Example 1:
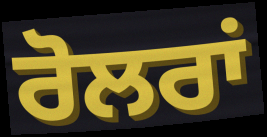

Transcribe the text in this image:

ਰੋਲਰਾਂ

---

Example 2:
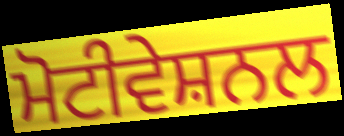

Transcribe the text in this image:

ਮੋਟੀਵੇਸ਼ਨਲ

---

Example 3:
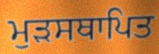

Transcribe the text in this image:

ਮੁੜਸਥਾਪਿਤ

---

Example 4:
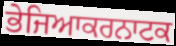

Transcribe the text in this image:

ਭੇਜਿਆਕਰਨਾਟਕ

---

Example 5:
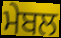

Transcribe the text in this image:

ਮੇਬਲ